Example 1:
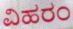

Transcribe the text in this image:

ವಿಹರಂ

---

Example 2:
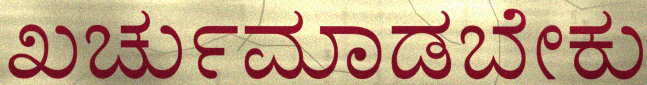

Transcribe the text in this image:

ಖರ್ಚುಮಾಡಬೇಕು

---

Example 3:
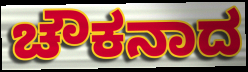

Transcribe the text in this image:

ಚೌಕನಾದ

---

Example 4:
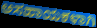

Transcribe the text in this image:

ಅಸಹಾಯಕಳಾಗಿ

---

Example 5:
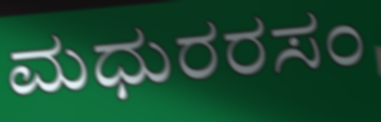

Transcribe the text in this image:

ಮಧುರರಸಂ